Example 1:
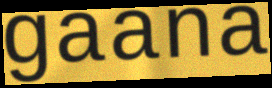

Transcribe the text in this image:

gaana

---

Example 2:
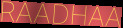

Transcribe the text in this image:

RAADHAA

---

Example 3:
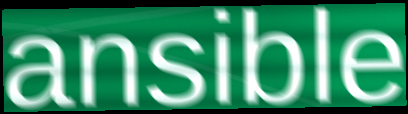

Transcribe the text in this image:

ansible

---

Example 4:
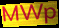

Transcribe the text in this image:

MWp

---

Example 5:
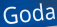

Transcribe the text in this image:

Goda